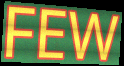
FEW